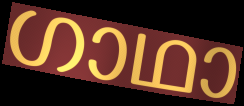
ഗാഥാ